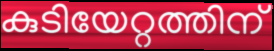
കുടിയേറ്റത്തിന്